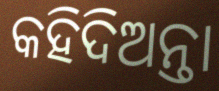
କହିଦିଅନ୍ତା